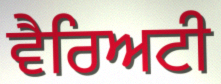
ਵੈਰਿਅਟੀ